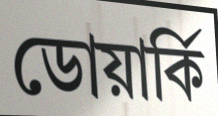
ডোয়ার্কি